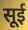
सूई